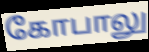
கோபாலு